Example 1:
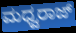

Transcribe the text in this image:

ಮಧ್ವರಾಜ್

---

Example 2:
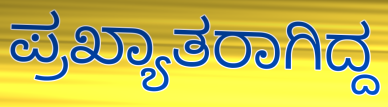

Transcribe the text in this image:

ಪ್ರಖ್ಯಾತರಾಗಿದ್ದ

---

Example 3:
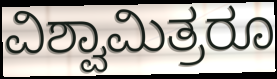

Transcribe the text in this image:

ವಿಶ್ವಾಮಿತ್ರರೂ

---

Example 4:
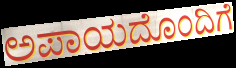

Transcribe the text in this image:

ಅಪಾಯದೊಂದಿಗೆ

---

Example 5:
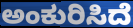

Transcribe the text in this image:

ಅಂಕುರಿಸಿದೆ